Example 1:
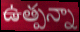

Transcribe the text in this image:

ఉత్పన్నా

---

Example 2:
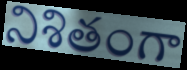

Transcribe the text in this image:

నిశితంగా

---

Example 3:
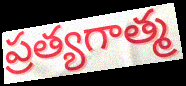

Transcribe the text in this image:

ప్రత్యగాత్మ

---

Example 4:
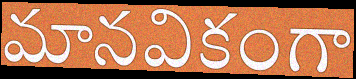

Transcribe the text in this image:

మానవికంగా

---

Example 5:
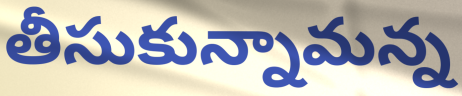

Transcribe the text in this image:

తీసుకున్నామన్న